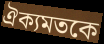
ঐক্যমতকে